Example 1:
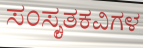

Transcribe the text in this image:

ಸಂಸ್ಕೃತಕವಿಗಳ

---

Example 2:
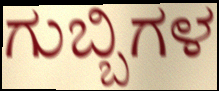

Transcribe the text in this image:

ಗುಬ್ಬಿಗಳ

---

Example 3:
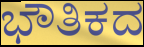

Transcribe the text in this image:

ಭೌತಿಕದ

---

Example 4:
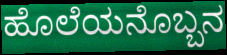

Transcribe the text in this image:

ಹೊಲೆಯನೊಬ್ಬನ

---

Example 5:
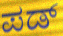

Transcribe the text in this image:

ಪಡ್